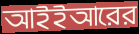
আইইআরের